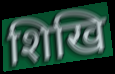
शिखि